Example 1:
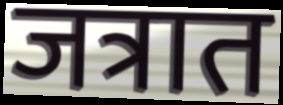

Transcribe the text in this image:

जत्रात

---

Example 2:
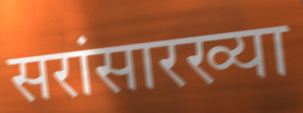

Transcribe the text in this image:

सरांसारख्या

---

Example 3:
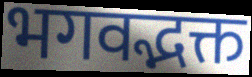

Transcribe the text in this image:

भगवद्भक्त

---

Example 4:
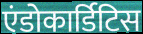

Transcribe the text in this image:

एंडोकार्डिटिस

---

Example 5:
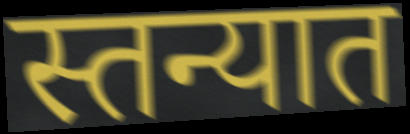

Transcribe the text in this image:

स्तन्यात